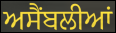
ਅਸੈਂਬਲੀਆਂ